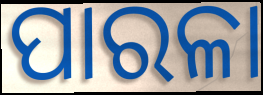
ପାରଳା